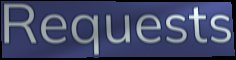
Requests